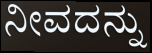
ನೀವದನ್ನು